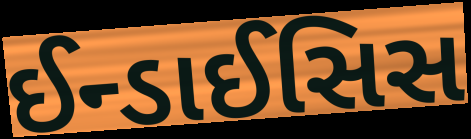
ઈન્ડાઈસિસ